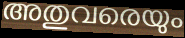
അതുവരെയും